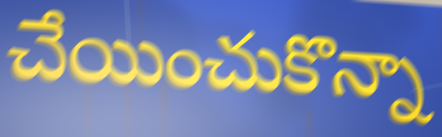
చేయించుకొన్నా